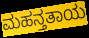
ಮಹನ್ತತಾಯ